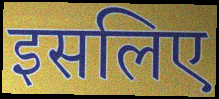
इसलिए